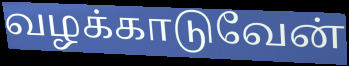
வழக்காடுவேன்